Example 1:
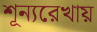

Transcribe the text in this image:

শূন্যরেখায়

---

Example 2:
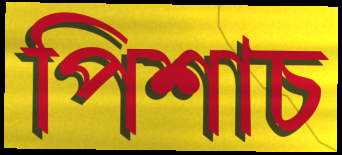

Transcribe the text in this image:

পিশাচ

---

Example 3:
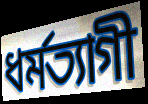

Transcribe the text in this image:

ধর্মত্যাগী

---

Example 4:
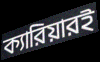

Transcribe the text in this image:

ক্যারিয়ারই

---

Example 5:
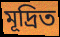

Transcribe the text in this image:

মূদ্রিত